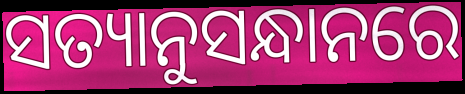
ସତ୍ୟାନୁସନ୍ଧାନରେ